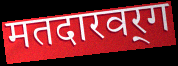
मतदारवर्ग